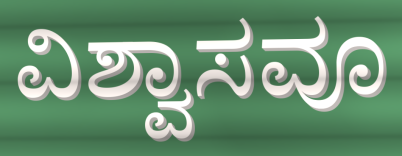
ವಿಶ್ವಾಸವೂ